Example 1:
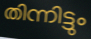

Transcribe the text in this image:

തിന്നിട്ടും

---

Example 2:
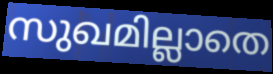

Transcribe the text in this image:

സുഖമില്ലാതെ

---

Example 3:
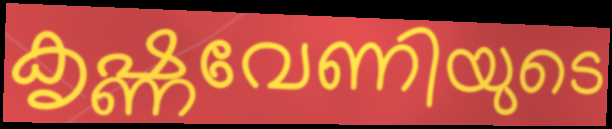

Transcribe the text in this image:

കൃഷ്ണവേണിയുടെ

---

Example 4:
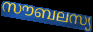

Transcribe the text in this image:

സൗബലസ്യ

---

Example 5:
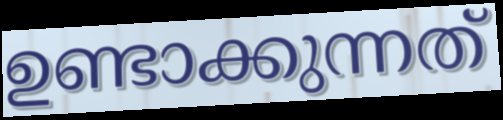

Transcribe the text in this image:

ഉണ്ടാക്കുന്നത്